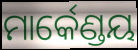
ମାର୍କେଣ୍ଡୟ